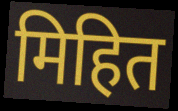
मिहित